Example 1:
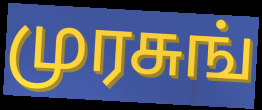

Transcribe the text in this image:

முரசுங்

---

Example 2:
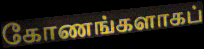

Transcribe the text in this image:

கோணங்களாகப்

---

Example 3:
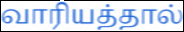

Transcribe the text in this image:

வாரியத்தால்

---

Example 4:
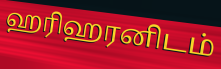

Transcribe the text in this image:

ஹரிஹரனிடம்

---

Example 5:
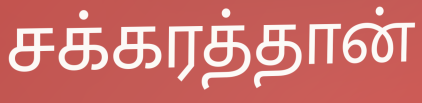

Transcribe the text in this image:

சக்கரத்தான்